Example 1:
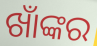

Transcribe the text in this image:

ଖାଁଙ୍କର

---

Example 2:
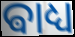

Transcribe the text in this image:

ଵାଧ୍ୟ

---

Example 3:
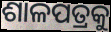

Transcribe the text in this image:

ଶାଳପତ୍ରକୁ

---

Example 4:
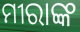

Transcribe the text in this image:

ମୀରାଙ୍କ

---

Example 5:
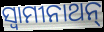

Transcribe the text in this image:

ସ୍ୱାମୀନାଥନ୍